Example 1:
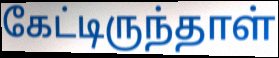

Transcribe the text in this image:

கேட்டிருந்தாள்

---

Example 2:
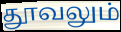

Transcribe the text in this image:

தூவலும்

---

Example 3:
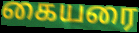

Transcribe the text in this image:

கையரை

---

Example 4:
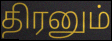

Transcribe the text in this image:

திரனும்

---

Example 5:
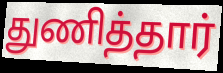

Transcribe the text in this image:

துணித்தார்